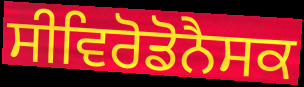
ਸੀਵਿਰੋਡੋਨੈਸਕ